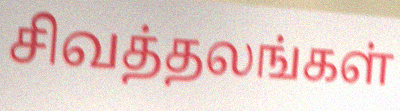
சிவத்தலங்கள்